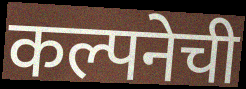
कल्पनेची